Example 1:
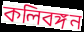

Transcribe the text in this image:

কলিবঙ্গন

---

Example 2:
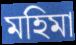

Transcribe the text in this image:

মহিমা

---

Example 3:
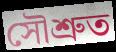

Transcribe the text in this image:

সৌশ্ৰুত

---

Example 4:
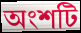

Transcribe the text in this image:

অংশটি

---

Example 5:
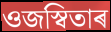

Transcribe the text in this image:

ওজস্বিতাৰ